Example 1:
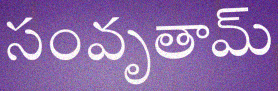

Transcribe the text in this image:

సంవృతామ్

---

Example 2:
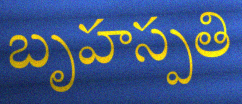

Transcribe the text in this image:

బృహస్పతి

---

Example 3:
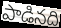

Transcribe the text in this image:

పాడినది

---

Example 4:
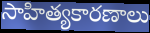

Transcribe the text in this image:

సాహిత్యకారణాలు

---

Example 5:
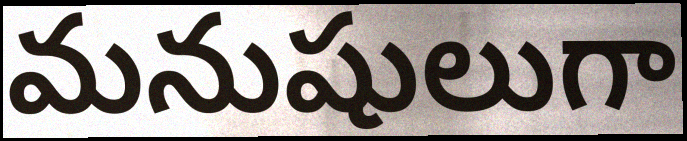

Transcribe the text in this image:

మనుషులుగా